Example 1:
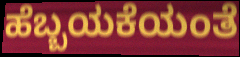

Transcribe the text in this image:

ಹೆಬ್ಬಯಕೆಯಂತೆ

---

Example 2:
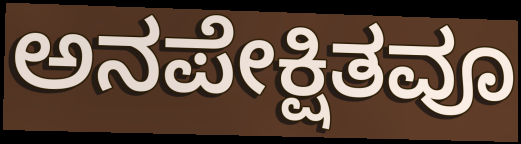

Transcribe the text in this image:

ಅನಪೇಕ್ಷಿತವೂ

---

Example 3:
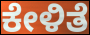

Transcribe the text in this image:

ಕೇಳಿತೆ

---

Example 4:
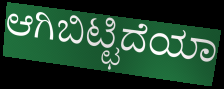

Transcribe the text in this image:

ಆಗಿಬಿಟ್ಟಿದೆಯಾ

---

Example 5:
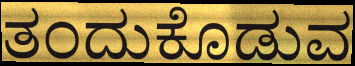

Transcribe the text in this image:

ತಂದುಕೊಡುವ